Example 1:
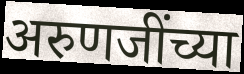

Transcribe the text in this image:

अरुणजींच्या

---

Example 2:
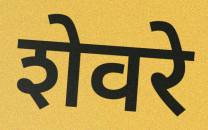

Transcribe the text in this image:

शेवरे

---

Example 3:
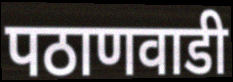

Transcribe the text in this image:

पठाणवाडी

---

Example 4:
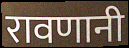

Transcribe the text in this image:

रावणानी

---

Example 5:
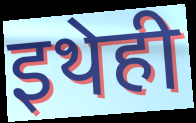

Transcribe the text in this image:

इथेही